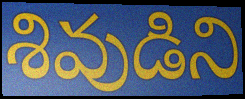
శివుడిని